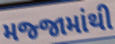
મજ્જામાંથી